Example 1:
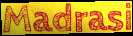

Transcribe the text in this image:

Madrasi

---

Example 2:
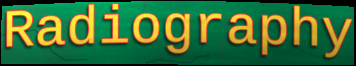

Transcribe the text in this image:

Radiography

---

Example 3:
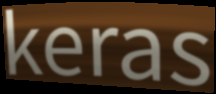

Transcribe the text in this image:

keras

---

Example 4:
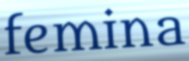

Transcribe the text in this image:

femina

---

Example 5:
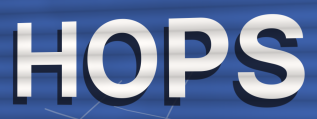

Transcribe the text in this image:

HOPS